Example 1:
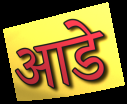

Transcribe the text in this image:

आडे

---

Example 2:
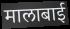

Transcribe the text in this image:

मालाबाई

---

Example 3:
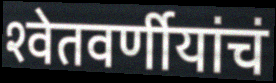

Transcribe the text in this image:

श्वेतवर्णीयांचं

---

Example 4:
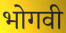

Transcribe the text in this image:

भोगवी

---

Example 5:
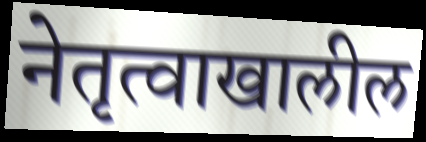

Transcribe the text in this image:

नेतृत्वाखालील